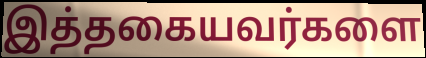
இத்தகையவர்களை